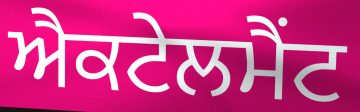
ਐਕਟੇਲਮੈਂਟ